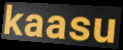
kaasu